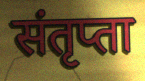
संतृप्ता